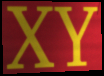
XY